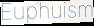
Euphuism